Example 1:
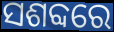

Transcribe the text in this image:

ସଶବ୍ଦରେ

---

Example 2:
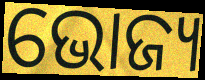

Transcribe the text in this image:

ଭୋଜ୍ୟ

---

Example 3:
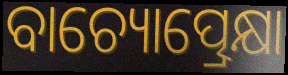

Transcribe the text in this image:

ବାଚ୍ୟୋତ୍ପ୍ରେକ୍ଷା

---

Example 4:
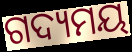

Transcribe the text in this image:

ଗଦ୍ୟମୟ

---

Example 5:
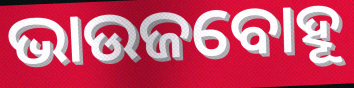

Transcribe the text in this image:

ଭାଉଜବୋହୂ